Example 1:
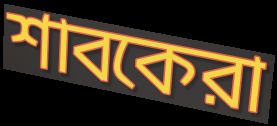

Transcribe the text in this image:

শাবকেরা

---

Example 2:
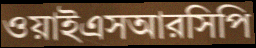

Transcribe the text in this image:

ওয়াইএসআরসিপি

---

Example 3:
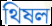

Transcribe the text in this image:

থিষল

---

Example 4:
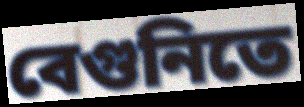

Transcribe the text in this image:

বেগুনিতে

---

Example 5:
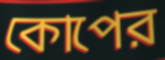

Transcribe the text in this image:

কোপের